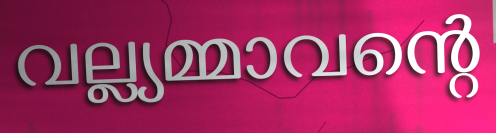
വല്ല്യമ്മാവന്റെ